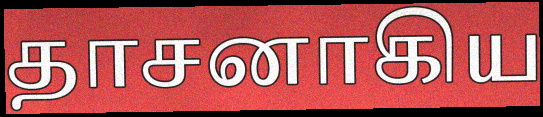
தாசனாகிய